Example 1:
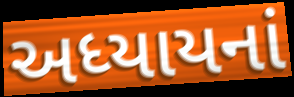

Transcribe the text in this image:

અધ્યાયનાં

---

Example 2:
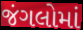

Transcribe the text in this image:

જંગલોમાં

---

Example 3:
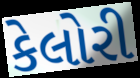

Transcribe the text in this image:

કેલોરી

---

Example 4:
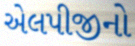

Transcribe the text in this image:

એલપીજીનો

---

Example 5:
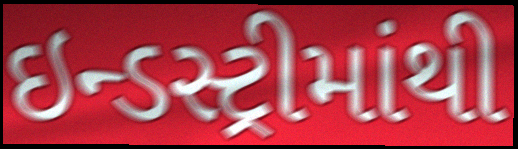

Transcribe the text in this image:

ઇન્ડસ્ટ્રીમાંથી